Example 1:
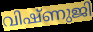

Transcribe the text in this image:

വിഷ്ണുജി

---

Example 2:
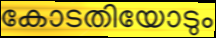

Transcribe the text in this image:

കോടതിയോടും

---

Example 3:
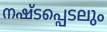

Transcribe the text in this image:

നഷ്ടപ്പെടലും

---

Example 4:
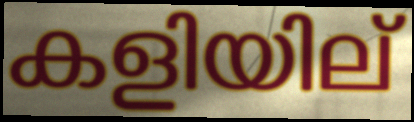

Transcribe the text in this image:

കളിയില്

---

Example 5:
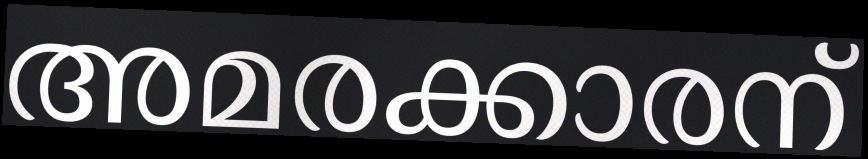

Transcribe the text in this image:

അമരക്കാരന്